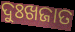
ଦୁଃଖଜାତ